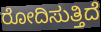
ರೋದಿಸುತ್ತಿದೆ